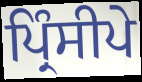
ਪ੍ਰਿੰਸੀਪੇ